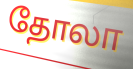
தோலா